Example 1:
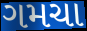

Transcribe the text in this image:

ગમચા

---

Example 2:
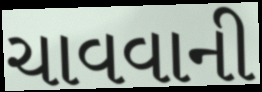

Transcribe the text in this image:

ચાવવાની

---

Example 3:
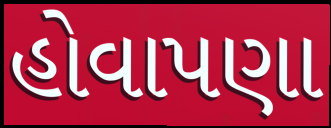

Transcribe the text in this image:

હોવાપણા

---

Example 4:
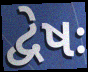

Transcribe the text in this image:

દ્વેષઃ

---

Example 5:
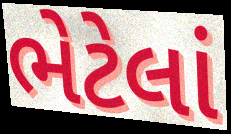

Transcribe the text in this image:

ભેટેલાં